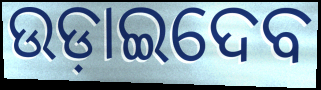
ଉଡ଼ାଇଦେବ